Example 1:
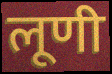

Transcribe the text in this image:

लूणी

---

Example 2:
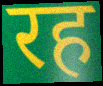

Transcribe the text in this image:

रह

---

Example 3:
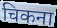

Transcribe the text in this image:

चिकना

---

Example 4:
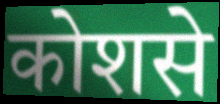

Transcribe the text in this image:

कोशसे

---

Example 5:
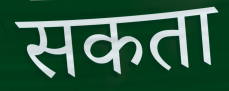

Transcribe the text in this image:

सकता